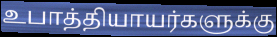
உபாத்தியாயர்களுக்கு